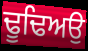
ਢੂਢਿਅਉ